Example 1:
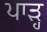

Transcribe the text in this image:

ਪਾੜ੍ਹ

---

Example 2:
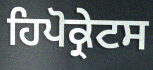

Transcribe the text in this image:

ਹਿਪੋਕ੍ਰੇਟਸ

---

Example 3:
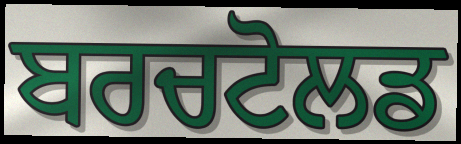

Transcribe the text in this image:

ਬਰਚਟੋਲਡ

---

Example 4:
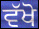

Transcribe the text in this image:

ਵੱਖੋ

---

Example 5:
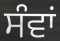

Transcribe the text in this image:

ਸੰਵਾਂ